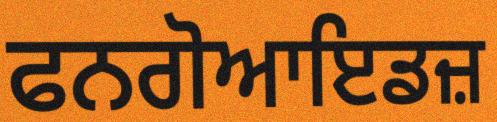
ਫਨਗੋਆਇਡਜ਼